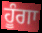
ਹੂੰਗਾ